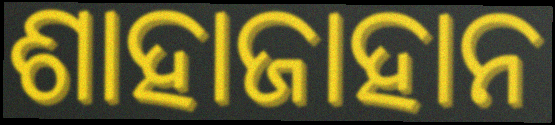
ଶାହାଜାହାନ